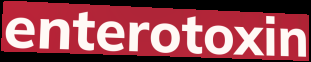
enterotoxin